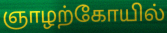
ஞாழற்கோயில்